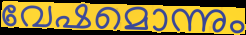
വേഷമൊന്നും